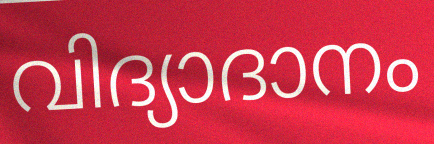
വിദ്യാദാനം